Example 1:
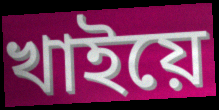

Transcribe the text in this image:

খাইয়ে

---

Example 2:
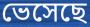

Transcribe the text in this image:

ভেসেছে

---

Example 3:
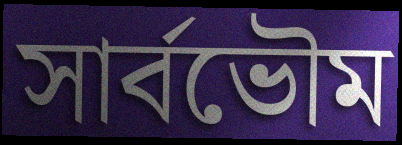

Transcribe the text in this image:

সার্বভৌম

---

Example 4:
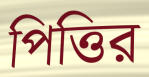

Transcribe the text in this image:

পিত্তির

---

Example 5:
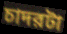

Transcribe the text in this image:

চাদরটা